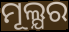
ମୂଲ୍ଯର